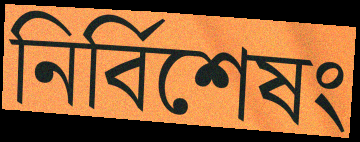
নির্বিশেষং